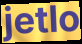
jetlo